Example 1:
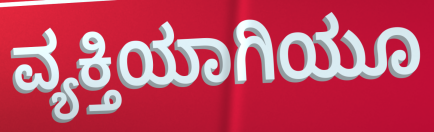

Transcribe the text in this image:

ವ್ಯಕ್ತಿಯಾಗಿಯೂ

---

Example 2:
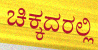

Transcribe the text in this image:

ಚಿಕ್ಕದರಲ್ಲಿ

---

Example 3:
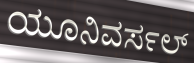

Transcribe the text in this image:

ಯೂನಿವರ್ಸಲ್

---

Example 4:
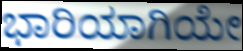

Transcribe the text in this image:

ಭಾರಿಯಾಗಿಯೇ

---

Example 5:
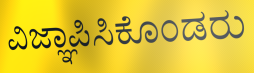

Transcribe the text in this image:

ವಿಜ್ಞಾಪಿಸಿಕೊಂಡರು